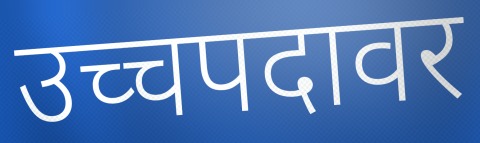
उच्चपदावर